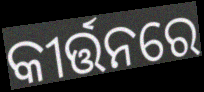
କୀର୍ତ୍ତନରେ